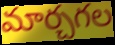
మార్చగల